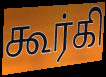
கூர்கி